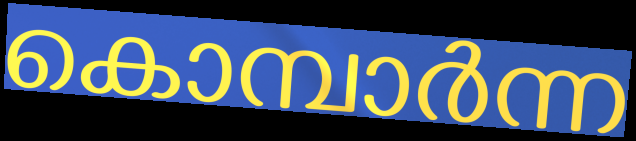
കൊമ്പാർന്ന